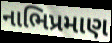
નાભિપ્રમાણ